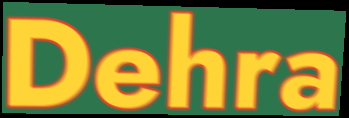
Dehra